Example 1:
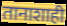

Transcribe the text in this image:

तानाशाही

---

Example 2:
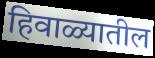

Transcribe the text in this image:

हिवाळ्यातील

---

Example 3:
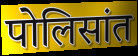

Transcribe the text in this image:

पोलिसांत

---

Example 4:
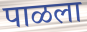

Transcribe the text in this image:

पाळला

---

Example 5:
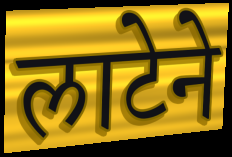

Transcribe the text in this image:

लाटेने